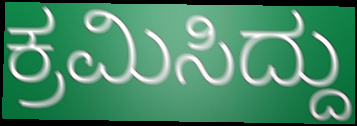
ಕ್ರಮಿಸಿದ್ದು